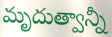
మృదుత్వాన్నీ